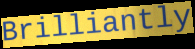
Brilliantly